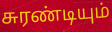
சுரண்டியும்